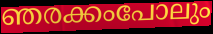
ഞരക്കംപോലും